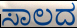
ಸಾಲದ